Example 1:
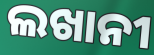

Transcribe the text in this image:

ଲଖାନୀ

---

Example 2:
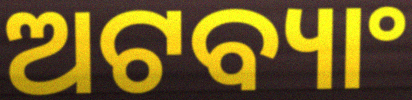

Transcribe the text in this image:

ଅଟବ୍ୟାଂ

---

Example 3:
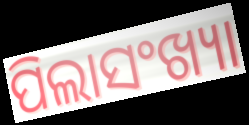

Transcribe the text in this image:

ପିଲାସଂଖ୍ୟା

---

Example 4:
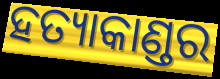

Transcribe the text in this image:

ହତ୍ୟାକାଣ୍ଡର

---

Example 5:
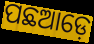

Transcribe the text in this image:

ପଛଆଡ଼େ